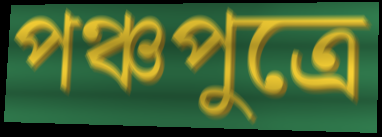
পঞ্চপুত্রে